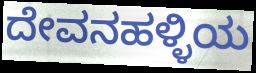
ದೇವನಹಳ್ಳಿಯ